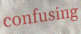
confusing